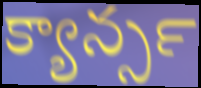
క్యాన్సర్‍